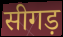
सीगड़